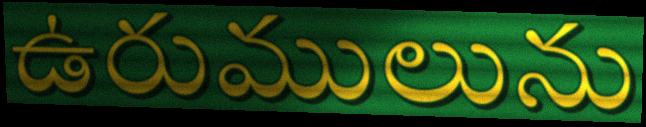
ఉరుములును